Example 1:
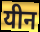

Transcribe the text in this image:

यीन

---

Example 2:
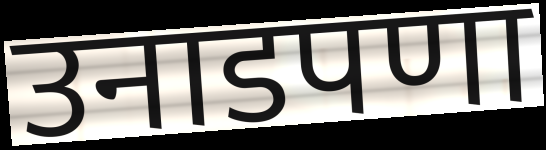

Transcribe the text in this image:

उनाडपणा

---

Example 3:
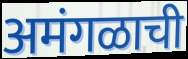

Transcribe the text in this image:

अमंगळाची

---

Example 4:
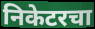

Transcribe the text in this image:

निकेटरचा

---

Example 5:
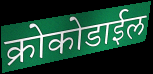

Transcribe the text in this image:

क्रोकोडाईल